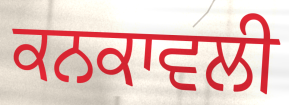
ਕਨਕਾਵਲੀ